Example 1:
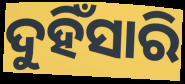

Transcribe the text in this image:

ଦୁହିଁସାରି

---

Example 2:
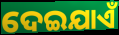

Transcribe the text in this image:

ଦେଇଯାଏଁ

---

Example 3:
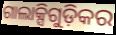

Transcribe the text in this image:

ଗାଲାକ୍ସିଗୁଡ଼ିକର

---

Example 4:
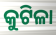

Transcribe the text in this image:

କୁଟିଳା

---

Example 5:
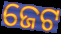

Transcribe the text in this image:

ଜେଟ